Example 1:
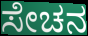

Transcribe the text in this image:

ಸೇಚನ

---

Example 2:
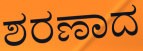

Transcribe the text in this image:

ಶರಣಾದ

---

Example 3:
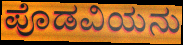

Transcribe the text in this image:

ಪೊಡವಿಯನು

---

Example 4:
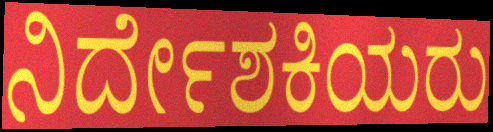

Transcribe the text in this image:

ನಿರ್ದೇಶಕಿಯರು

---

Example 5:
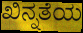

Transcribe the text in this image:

ಖಿನ್ನತೆಯ